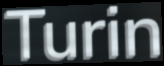
Turin